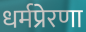
धर्मप्रेरणा